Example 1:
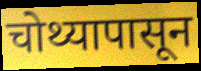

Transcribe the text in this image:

चोथ्यापासून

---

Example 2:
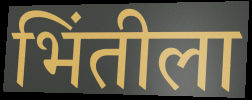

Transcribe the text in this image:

भिंतीला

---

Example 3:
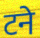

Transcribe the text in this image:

टने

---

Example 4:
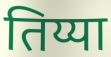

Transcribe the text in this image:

तिय्या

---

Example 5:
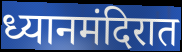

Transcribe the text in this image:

ध्यानमंदिरात